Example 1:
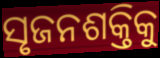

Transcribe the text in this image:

ସୃଜନଶକ୍ତିକୁ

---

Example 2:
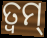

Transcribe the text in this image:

ତ୍ଵମ୍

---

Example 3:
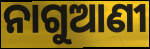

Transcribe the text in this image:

ନାଗୁଆଣୀ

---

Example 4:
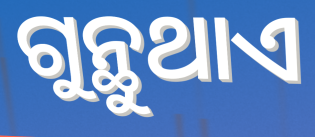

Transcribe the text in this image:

ଗୁନ୍ଥୁଥାଏ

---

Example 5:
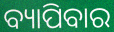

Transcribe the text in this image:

ବ୍ୟାପିବାର